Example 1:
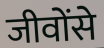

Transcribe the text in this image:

जीवोंसे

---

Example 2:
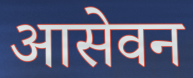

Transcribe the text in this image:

आसेवन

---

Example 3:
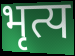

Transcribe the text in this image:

भृत्य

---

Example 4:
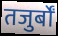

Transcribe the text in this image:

तजुर्बों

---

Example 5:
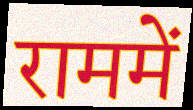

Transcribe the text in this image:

राममें